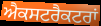
ਐਕਸਟਰੈਕਟਰਾਂ